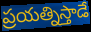
ప్రయత్నిస్తాడే